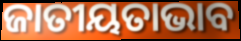
ଜାତୀୟତାଭାବ